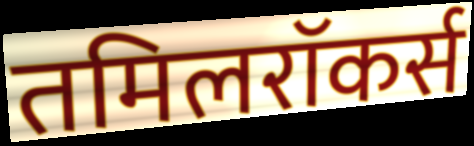
तमिलरॉकर्स